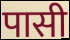
पासी